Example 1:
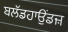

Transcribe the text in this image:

ਬਲੱਡਹਾਉਂਡਜ਼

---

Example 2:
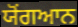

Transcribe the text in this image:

ਯੋਂਗਆਨ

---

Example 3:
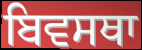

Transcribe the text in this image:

ਬਿਵਸਥਾ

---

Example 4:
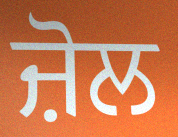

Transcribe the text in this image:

ਜ਼ੋਲ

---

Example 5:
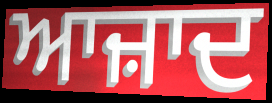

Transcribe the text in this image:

ਆਜ਼ਾਦ